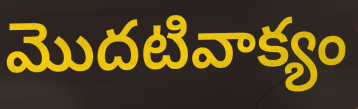
మొదటివాక్యం